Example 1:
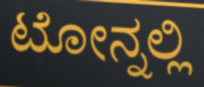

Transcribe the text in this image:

ಟೋನ್ನಲ್ಲಿ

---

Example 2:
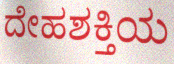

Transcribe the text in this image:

ದೇಹಶಕ್ತಿಯ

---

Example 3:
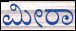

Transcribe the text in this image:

ಮೀರಾ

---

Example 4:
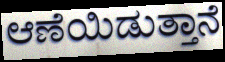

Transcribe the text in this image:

ಆಣೆಯಿಡುತ್ತಾನೆ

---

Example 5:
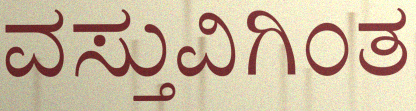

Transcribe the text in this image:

ವಸ್ತುವಿಗಿಂತ